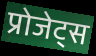
प्रोजेट्स